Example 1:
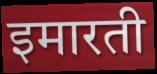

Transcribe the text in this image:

इमारती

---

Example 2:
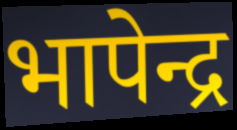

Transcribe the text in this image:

भापेन्द्र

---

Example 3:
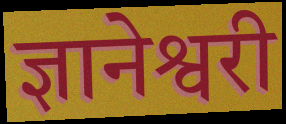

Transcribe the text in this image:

ज्ञानेश्वरी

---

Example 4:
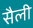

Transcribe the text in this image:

सैली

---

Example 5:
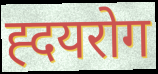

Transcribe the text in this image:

ह्दयरोग